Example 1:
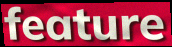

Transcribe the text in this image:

feature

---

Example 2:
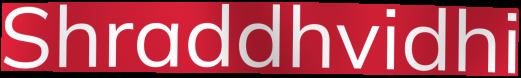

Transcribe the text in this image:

Shraddhvidhi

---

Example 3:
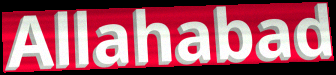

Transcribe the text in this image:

Allahabad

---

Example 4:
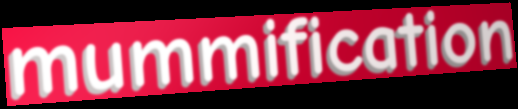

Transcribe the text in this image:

mummification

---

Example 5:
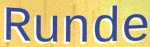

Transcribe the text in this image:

Runde